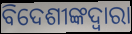
ବିଦେଶୀଙ୍କଦ୍ୱାରା